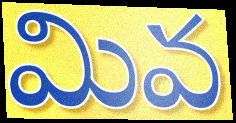
మివ